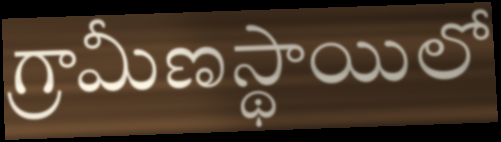
గ్రామీణస్థాయిలో